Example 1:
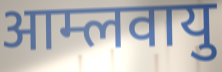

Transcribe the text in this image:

आम्लवायु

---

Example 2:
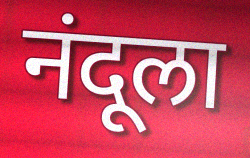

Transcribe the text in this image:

नंदूला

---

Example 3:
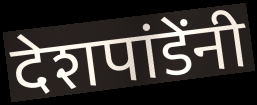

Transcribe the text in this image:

देशपांडेंनी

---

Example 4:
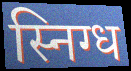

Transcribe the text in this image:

स्निग्ध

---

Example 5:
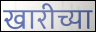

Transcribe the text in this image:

खारीच्या